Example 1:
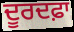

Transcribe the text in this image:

ਦੂਰਦਫ਼ਾ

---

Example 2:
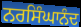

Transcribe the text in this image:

ਨਰਸਿੰਘਾਨੰਦ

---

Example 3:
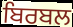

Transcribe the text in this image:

ਬਿਰਬਲ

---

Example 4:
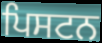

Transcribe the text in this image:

ਪਿਸਟਨ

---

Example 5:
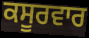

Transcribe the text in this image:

ਕਸੂਰਵਾਰ